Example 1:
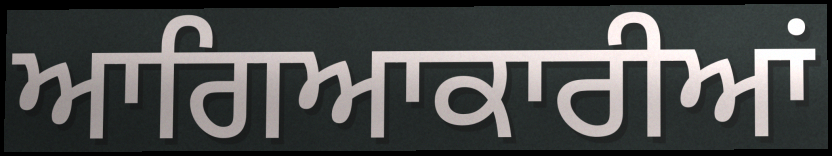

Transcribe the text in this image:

ਆਗਿਆਕਾਰੀਆਂ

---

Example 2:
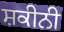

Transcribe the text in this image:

ਸ਼ਕੀਨੀ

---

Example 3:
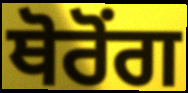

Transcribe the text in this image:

ਥੋਰੋਂਗ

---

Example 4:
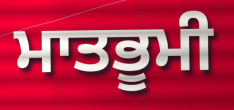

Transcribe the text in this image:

ਮਾਤਭੂਮੀ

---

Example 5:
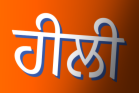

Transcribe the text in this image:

ਹੀਲੀ